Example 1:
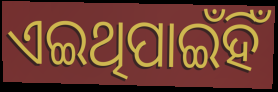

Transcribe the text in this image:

ଏଇଥିପାଇଁହିଁ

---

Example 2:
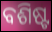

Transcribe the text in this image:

ବଶିଷ୍ଟ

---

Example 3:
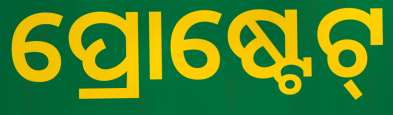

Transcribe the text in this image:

ପ୍ରୋଷ୍ଟେଟ୍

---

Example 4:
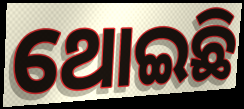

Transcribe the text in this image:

ଥୋଇଛି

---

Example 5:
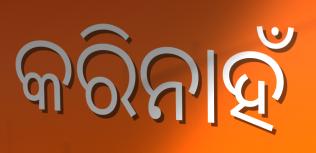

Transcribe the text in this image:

କରିନାହଁ